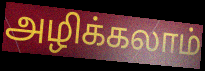
அழிக்கலாம்